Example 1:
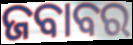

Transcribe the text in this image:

ଜବାବର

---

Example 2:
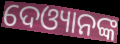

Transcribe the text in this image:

ଦେଓ୍ୟାନଙ୍କ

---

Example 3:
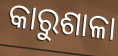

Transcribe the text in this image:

କାରୁଶାଳା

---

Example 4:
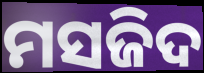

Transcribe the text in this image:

ମସଜିଦ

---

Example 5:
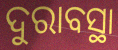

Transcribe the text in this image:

ଦୁରାବସ୍ଥା